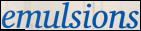
emulsions